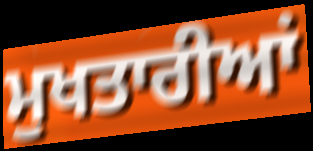
ਮੁਖਤਾਰੀਆਂ